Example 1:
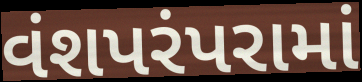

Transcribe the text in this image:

વંશપરંપરામાં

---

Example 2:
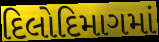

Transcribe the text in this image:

દિલોદિમાગમાં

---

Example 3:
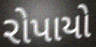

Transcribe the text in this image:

રોપાયો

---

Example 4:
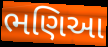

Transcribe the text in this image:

ભણિઆ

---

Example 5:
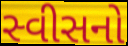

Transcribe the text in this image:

સ્વીસનો